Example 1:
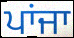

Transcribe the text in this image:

ਪਾਂਜਾ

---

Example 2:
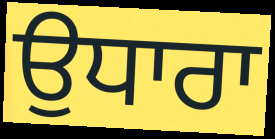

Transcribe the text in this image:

ਉਧਾਰਾ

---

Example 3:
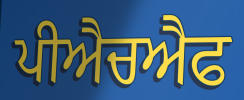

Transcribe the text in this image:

ਪੀਐਚਐਫ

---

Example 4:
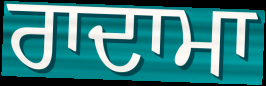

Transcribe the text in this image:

ਰਾਦਾਮਾ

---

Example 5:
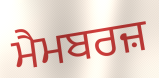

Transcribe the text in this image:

ਮੈਮਬਰਜ਼